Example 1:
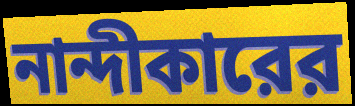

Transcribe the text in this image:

নান্দীকারের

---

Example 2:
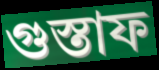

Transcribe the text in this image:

গুস্তাফ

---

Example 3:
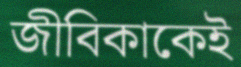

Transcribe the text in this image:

জীবিকাকেই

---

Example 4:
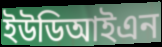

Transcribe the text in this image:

ইউডিআইএন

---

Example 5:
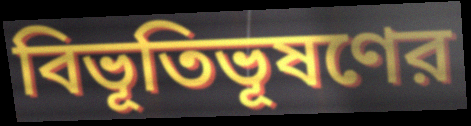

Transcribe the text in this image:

বিভূতিভূষণের